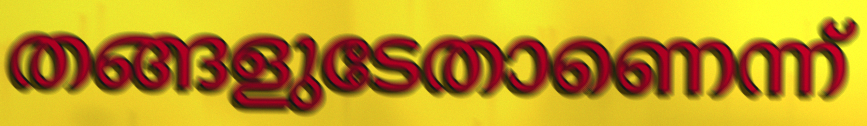
തങ്ങളുടേതാണെന്ന്